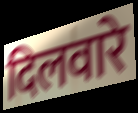
दिलवारे